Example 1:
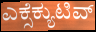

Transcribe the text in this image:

ಎಕ್ಸೆಕ್ಯುಟಿವ್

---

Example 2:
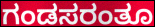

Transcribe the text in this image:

ಗಂಡಸರಂತೂ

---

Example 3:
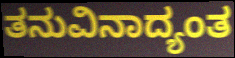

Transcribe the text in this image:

ತನುವಿನಾದ್ಯಂತ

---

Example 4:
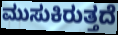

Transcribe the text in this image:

ಮುಸುಕಿರುತ್ತದೆ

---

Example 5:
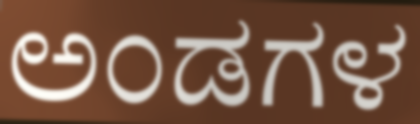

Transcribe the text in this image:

ಅಂಡಗಳ